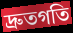
দ্রুতগতি